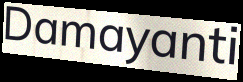
Damayanti